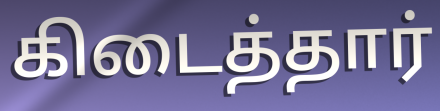
கிடைத்தார்